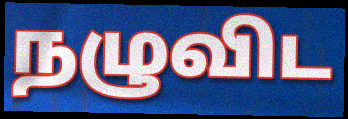
நழுவிட